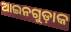
ଆଇନଗୁଡ଼ାକ